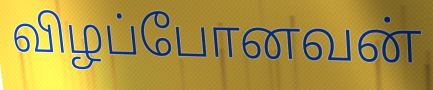
விழப்போனவன்